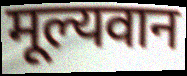
मूल्यवान